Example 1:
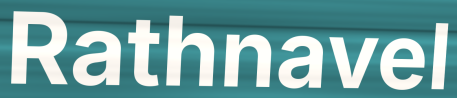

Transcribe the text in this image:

Rathnavel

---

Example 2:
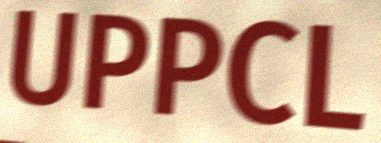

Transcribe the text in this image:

UPPCL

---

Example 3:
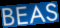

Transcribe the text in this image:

BEAS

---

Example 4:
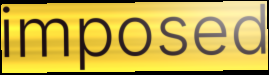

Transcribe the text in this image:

imposed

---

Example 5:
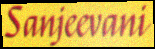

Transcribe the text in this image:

Sanjeevani